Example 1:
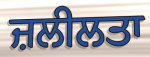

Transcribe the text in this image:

ਜ਼ਲੀਲਤਾ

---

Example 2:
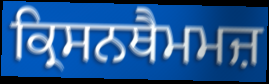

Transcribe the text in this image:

ਕ੍ਰਿਸਨਥੈਮਮਜ਼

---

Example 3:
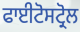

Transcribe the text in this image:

ਫਾਈਟੋਸਟ੍ਰੋਲ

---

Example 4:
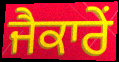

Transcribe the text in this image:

ਜੈਕਾਰੇਂ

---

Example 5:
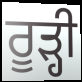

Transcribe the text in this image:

ਰੂੜ੍ਹੀ